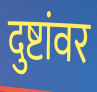
दुष्टांवर